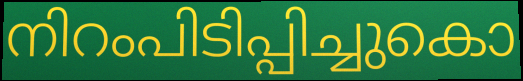
നിറംപിടിപ്പിച്ചുകൊ